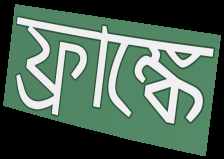
ফ্রাঙ্কে